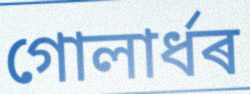
গোলাৰ্ধৰ